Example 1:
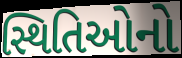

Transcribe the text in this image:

સ્થિતિઓનો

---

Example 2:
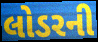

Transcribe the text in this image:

લોડરની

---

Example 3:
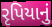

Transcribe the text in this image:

રૃપિયાનું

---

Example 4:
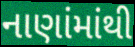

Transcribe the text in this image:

નાણાંમાંથી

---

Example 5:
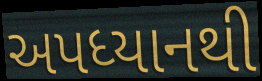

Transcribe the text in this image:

અપધ્યાનથી